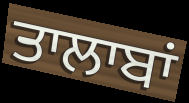
ਤਾਲਾਬਾਂ